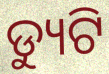
ଡ୍ୟୁଟି